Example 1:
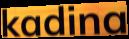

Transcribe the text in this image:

kadina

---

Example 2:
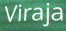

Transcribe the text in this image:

Viraja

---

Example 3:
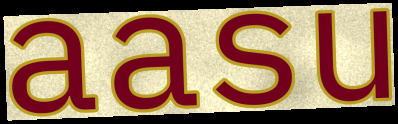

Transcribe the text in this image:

aasu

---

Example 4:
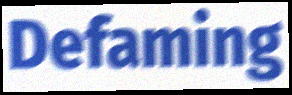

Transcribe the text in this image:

Defaming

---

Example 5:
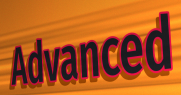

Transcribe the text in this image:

Advanced